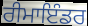
ਰੀਮਾਇੰਡਰ